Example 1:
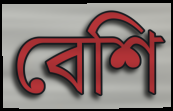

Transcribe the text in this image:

বেশি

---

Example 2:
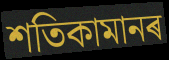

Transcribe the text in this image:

শতিকামানৰ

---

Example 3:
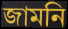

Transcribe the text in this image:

জামনি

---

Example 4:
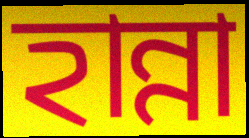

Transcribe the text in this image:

হান্না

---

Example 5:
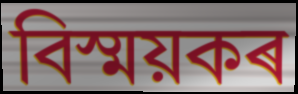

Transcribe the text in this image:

বিস্ময়কৰ